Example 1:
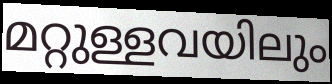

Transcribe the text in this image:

മറ്റുള്ളവയിലും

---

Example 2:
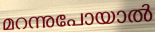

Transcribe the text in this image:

മറന്നുപോയാൽ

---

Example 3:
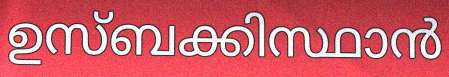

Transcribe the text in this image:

ഉസ്ബക്കിസ്ഥാൻ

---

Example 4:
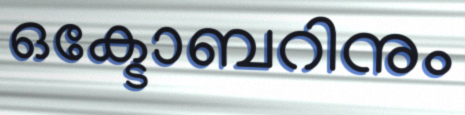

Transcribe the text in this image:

ഒക്ടോബറിനും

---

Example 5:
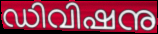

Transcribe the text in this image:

ഡിവിഷനു